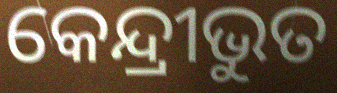
କେନ୍ଦ୍ରୀଭୁତ